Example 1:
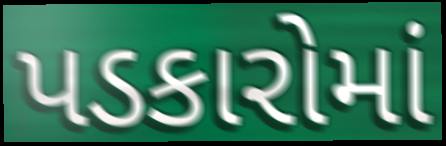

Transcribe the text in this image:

પડકારોમાં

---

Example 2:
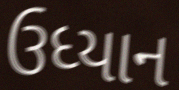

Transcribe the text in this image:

ઉધ્યાન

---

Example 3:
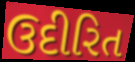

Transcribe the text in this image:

ઉદીરિત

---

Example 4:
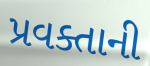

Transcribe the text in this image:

પ્રવક્તાની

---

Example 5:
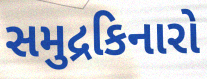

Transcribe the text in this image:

સમુદ્રકિનારો